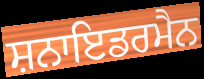
ਸ਼ਨਾਇਡਰਮੈਨ